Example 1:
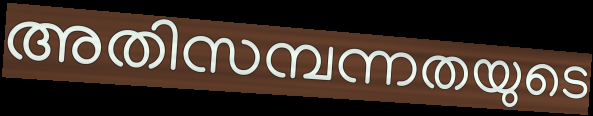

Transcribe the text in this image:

അതിസമ്പന്നതയുടെ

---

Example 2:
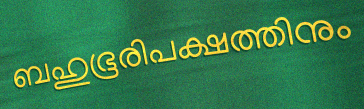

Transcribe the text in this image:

ബഹുഭൂരിപക്ഷത്തിനും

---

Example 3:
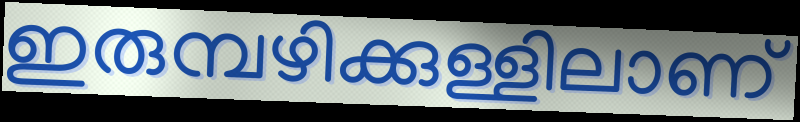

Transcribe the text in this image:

ഇരുമ്പഴിക്കുള്ളിലാണ്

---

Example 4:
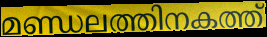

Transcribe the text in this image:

മണ്ഡലത്തിനകത്ത്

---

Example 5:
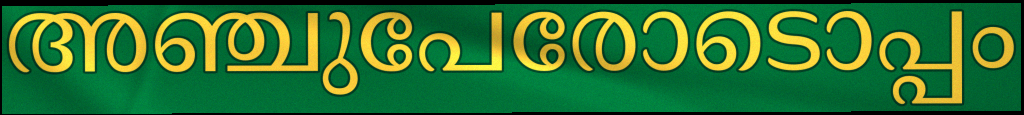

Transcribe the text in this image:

അഞ്ചുപേരോടൊപ്പം